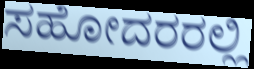
ಸಹೋದರರಲ್ಲಿ